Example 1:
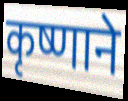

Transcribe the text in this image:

कृष्णाने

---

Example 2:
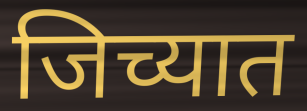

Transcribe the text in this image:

जिच्यात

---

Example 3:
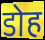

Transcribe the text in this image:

डोह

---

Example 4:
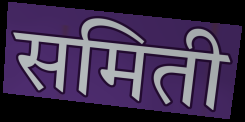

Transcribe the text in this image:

समिती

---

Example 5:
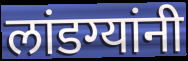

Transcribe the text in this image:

लांडग्यांनी